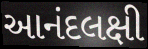
આનંદલક્ષી